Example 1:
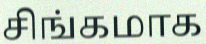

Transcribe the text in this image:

சிங்கமாக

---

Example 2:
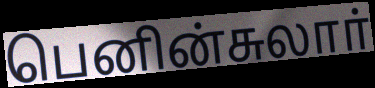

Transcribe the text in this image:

பெனின்சுலார்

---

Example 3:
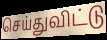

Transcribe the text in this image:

செய்துவிட்டு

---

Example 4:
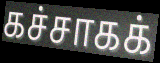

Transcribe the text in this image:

கச்சாகக்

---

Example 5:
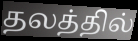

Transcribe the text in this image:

தலத்தில்